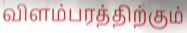
விளம்பரத்திற்கும்